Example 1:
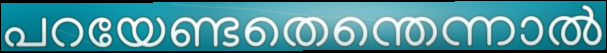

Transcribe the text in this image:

പറയേണ്ടതെന്തെന്നാൽ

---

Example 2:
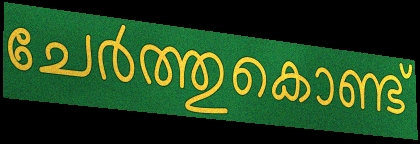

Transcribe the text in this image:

ചേർത്തുകൊണ്ട്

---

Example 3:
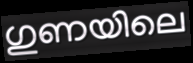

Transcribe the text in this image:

ഗുണയിലെ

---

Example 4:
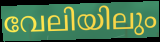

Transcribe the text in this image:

വേലിയിലും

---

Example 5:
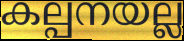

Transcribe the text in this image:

കല്പനയല്ല